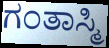
ಗಂತಾಸ್ಮಿ